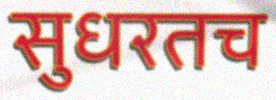
सुधरतच